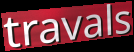
travals